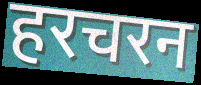
हरचरन